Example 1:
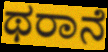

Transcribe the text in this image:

ಥರಾನೆ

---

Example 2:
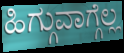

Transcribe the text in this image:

ಹಿಗ್ಗುವಾಗ್ಗೆಲ್ಲ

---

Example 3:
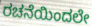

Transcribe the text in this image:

ರಚನೆಯಿಂದಲೇ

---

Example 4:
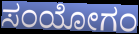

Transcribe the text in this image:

ಸಂಯೋಗಂ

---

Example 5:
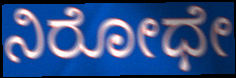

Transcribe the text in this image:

ನಿರೋಧೇ